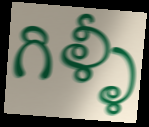
గిళ్ళీ